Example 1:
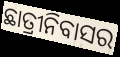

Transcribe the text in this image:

ଛାତ୍ରୀନିବାସର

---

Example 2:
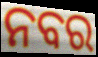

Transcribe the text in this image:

ନବର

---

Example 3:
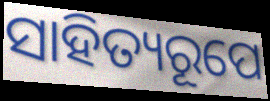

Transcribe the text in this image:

ସାହିତ୍ୟରୂପେ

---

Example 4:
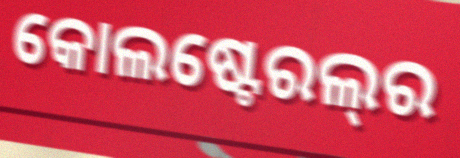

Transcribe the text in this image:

କୋଲଷ୍ଟେରଲ୍‌ର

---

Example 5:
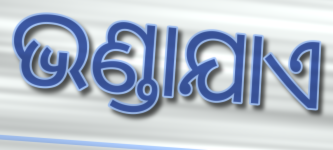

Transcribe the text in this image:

ଭଣ୍ଡାଯାଏ